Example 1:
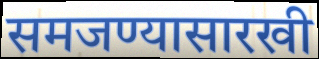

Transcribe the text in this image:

समजण्यासारखी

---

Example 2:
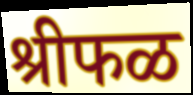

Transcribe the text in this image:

श्रीफळ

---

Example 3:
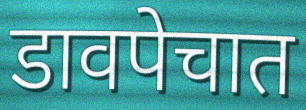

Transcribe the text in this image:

डावपेचात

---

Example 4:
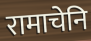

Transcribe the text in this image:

रामाचेनि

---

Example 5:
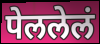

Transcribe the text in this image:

पेललेलं